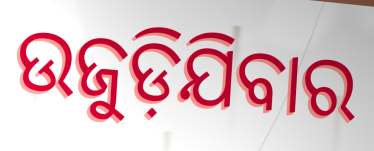
ଉଜୁଡ଼ିଯିବାର